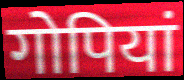
गोपियां